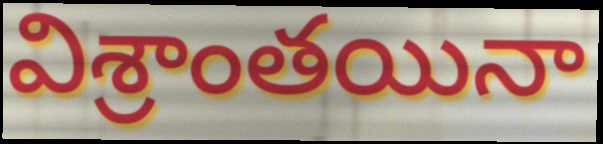
విశ్రాంతయినా